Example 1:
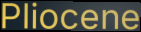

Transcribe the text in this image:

Pliocene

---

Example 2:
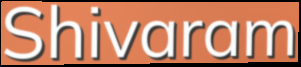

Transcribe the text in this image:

Shivaram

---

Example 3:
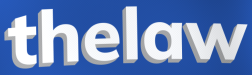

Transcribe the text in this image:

thelaw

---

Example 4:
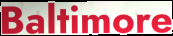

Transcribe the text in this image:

Baltimore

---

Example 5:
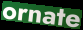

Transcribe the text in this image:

ornate